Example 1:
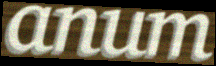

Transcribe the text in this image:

anum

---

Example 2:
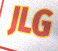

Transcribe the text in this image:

JLG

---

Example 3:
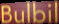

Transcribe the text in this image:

Bulbil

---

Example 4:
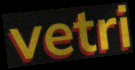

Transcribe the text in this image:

vetri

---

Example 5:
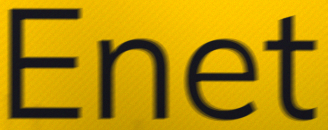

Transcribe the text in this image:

Enet